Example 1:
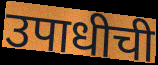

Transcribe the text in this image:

उपाधीची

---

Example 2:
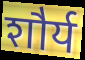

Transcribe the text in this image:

शौर्य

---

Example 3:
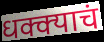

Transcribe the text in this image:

धक्क्याचं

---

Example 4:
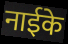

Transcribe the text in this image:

नाईके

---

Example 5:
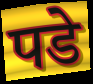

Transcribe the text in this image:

पडे